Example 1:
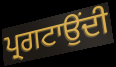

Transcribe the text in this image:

ਪ੍ਰਗਟਾਉਂਦੀ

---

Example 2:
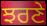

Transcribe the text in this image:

ਝਰਣੇ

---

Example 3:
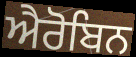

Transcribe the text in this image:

ਐਰੋਬਿਨ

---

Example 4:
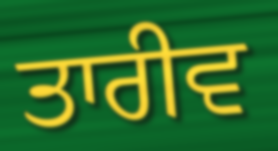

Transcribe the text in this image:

ਤਾਰੀਵ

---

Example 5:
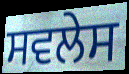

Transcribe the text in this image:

ਸਵਲੇਸ